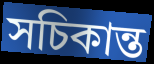
সচিকান্ত